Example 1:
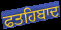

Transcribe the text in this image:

ਫਤਹਿਬਾਦ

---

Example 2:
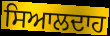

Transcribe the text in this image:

ਸਿਆਲਦਾਹ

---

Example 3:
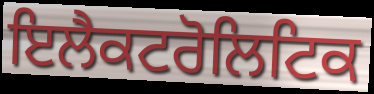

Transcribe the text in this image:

ਇਲੈਕਟਰੋਲਿਟਿਕ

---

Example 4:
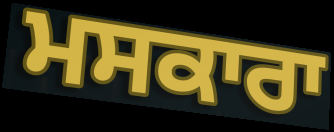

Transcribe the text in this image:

ਮਸਕਾਰਾ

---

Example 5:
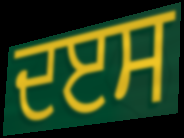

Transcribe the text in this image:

ਦੲਸ